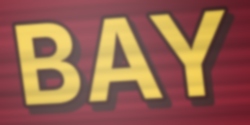
BAY